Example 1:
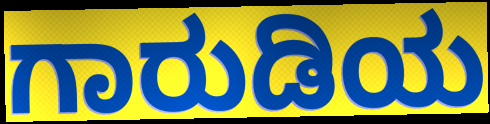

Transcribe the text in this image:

ಗಾರುಡಿಯ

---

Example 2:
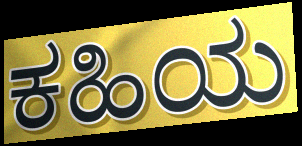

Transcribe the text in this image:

ಕಹಿಯ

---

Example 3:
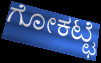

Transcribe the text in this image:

ಗೋಕಟ್ಟೆ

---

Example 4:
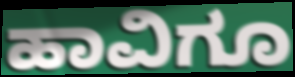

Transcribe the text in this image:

ಹಾವಿಗೂ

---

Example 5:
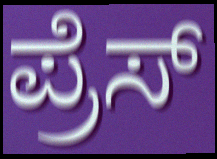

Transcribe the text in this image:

ಪ್ರೆಸ್